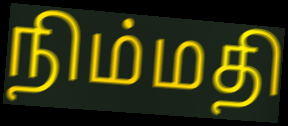
நிம்மதி